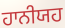
ਹਾਨੀਯਹ